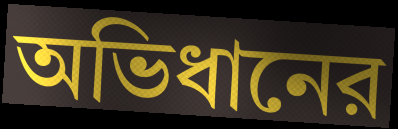
অভিধানের